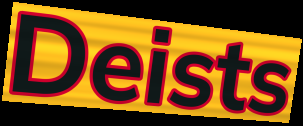
Deists